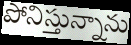
పోనిస్తున్నాను